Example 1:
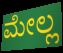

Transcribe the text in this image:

ಮೇಲ್ಲ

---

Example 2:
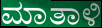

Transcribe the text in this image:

ಮಾತಾಳಿ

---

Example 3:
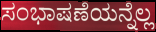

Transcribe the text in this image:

ಸಂಭಾಷಣೆಯನ್ನೆಲ್ಲ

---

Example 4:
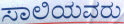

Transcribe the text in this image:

ಸಾಲಿಯವರು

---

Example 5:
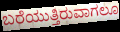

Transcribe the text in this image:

ಬರೆಯುತ್ತಿರುವಾಗಲೂ